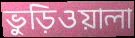
ভুড়িওয়ালা